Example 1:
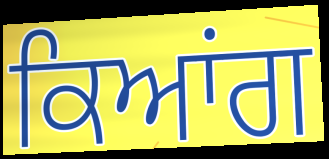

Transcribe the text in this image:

ਕਿਆਂਗ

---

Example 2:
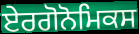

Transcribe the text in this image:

ਏਰਗੋਨੋਮਿਕਸ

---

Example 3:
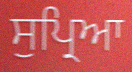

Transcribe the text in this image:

ਸੁਪ੍ਰਿਆ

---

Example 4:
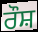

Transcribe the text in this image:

ਰੌਸ਼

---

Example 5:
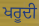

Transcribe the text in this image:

ਖਰੂਦੀ